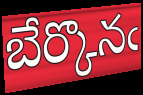
బేర్కొనఁ